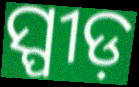
ସ୍ପୀଡ଼